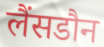
लैंसडौन